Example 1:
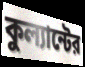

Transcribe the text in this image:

কুল্যান্টের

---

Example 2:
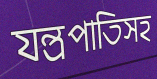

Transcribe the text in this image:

যন্ত্রপাতিসহ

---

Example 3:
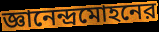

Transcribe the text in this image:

জ্ঞানেন্দ্রমোহনের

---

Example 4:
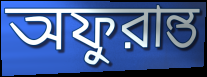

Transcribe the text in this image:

অফুরান্ত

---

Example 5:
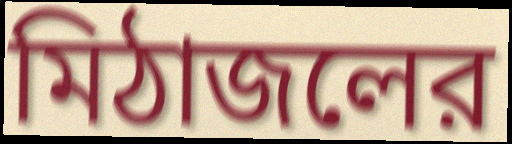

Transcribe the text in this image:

মিঠাজলের